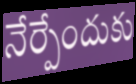
నేర్పేందుకు